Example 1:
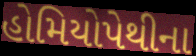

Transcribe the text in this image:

હોમિયોપેથીના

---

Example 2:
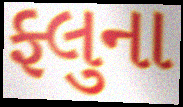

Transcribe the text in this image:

ફ્લુના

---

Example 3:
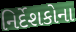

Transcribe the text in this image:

નિર્દેશકોના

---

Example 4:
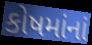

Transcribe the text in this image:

કોષમાંનાં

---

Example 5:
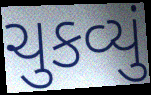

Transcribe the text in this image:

ચુકવ્યું